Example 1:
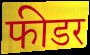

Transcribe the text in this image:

फीडर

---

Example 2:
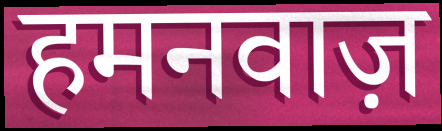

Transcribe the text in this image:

हमनवाज़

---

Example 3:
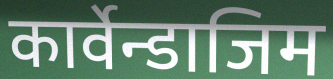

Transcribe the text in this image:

कार्वेन्डाजिम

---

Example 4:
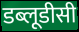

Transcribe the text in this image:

डब्लूडीसी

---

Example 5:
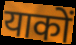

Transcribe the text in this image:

याकों